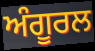
ਅੰਗੂਰਲ